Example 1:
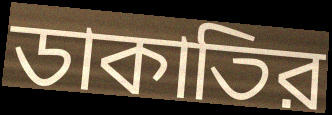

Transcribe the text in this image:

ডাকাতির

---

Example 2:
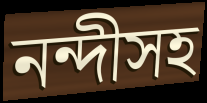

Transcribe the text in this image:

নন্দীসহ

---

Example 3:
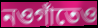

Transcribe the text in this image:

নওগাঁতেও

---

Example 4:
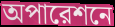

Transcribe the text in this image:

অপারেশনে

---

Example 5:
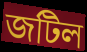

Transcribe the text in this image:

জটিল